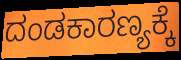
ದಂಡಕಾರಣ್ಯಕ್ಕೆ